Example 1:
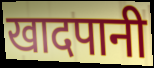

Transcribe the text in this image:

खादपानी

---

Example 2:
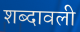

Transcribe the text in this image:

शब्दावली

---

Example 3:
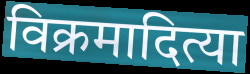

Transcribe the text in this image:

विक्रमादित्या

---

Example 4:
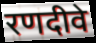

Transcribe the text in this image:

रणदीवे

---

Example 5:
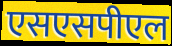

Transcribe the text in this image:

एसएसपीएल